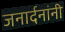
जनार्दनांनी